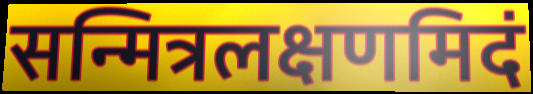
सन्मित्रलक्षणमिदं